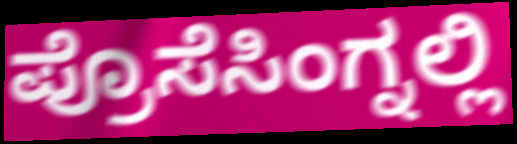
ಪ್ರೊಸೆಸಿಂಗ್ನಲ್ಲಿ